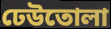
ঢেউতোলা